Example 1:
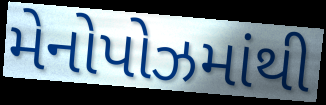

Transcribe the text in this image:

મેનોપોઝમાંથી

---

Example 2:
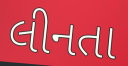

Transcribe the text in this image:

લીનતા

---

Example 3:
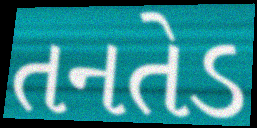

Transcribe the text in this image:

તનતેડ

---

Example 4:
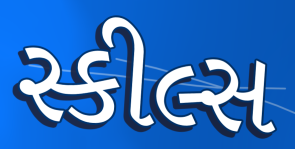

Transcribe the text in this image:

સ્કીલ્સ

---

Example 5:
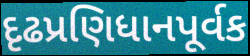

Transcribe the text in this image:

દૃઢપ્રણિધાનપૂર્વક